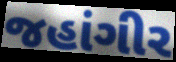
જહાંગીર